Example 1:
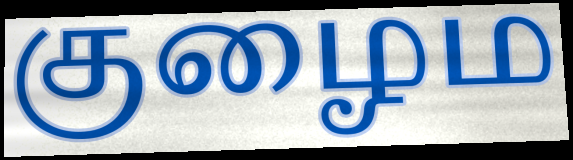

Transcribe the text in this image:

குழைம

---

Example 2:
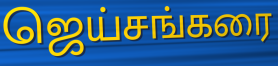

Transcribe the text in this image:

ஜெய்சங்கரை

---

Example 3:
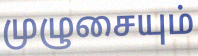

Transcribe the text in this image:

முழுசையும்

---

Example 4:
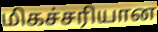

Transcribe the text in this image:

மிகச்சரியான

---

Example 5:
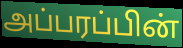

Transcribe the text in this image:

அப்பரப்பின்